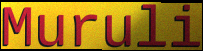
Muruli